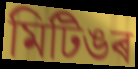
মিটিঙৰ